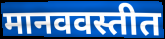
मानववस्तीत